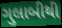
ગુલાબીથી